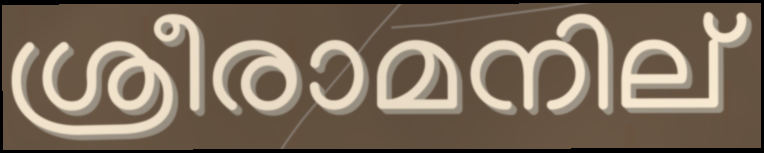
ശ്രീരാമനില്